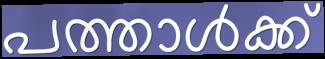
പത്താൾക്ക്